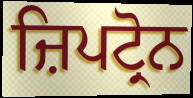
ਜ਼ਿਪਟ੍ਰੋਨ